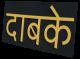
दाबके